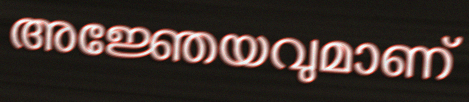
അജ്ഞേയവുമാണ്